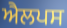
ਐਲਪਸ